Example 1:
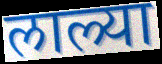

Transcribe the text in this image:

लाल्या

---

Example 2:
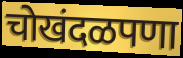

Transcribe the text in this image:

चोखंदळपणा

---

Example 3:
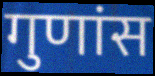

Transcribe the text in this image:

गुणांस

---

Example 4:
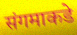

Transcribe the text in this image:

संगमाकडे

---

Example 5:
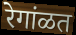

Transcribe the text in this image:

रेगांळत